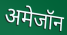
अमेजॉन